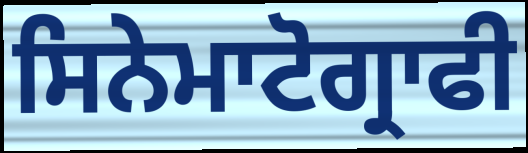
ਸਿਨੇਮਾਟੋਗ੍ਰਾਫੀ